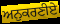
ਅਨੁਕਰਣੀਏ